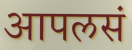
आपलसं